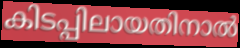
കിടപ്പിലായതിനാൽ